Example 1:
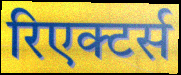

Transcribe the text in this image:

रिएक्टर्स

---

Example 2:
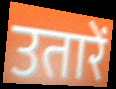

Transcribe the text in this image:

उतारें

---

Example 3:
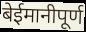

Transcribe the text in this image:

बेईमानीपूर्ण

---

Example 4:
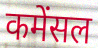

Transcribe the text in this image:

कमेंसल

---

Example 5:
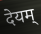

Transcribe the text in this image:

देयम्